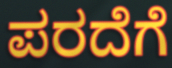
ಪರದೆಗೆ